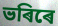
ভৰিৰে